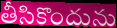
తీసికొందును